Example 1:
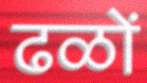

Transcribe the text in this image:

ढळों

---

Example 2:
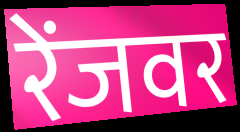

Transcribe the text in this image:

रेंजवर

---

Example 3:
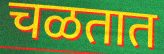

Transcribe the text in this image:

चळतात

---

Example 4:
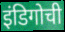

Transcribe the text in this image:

इंडिगोची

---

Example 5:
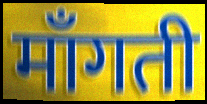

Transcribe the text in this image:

माँगती